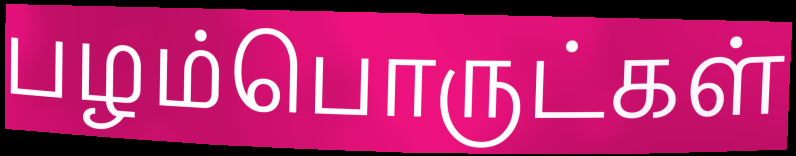
பழம்பொருட்கள்